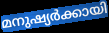
മനുഷ്യർക്കായി